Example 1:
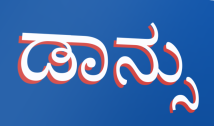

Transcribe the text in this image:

ಡಾನ್ಸು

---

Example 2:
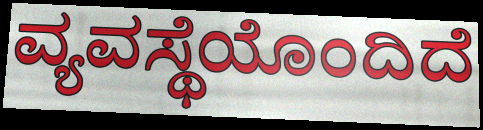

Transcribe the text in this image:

ವ್ಯವಸ್ಥೆಯೊಂದಿದೆ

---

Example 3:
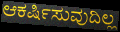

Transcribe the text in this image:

ಆಕರ್ಷಿಸುವುದಿಲ್ಲ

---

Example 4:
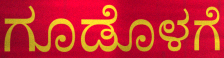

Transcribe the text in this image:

ಗೂಡೊಳಗೆ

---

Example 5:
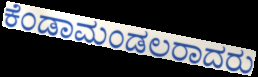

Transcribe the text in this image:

ಕೆಂಡಾಮಂಡಲರಾದರು